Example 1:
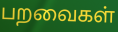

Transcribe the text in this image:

பறவைகள்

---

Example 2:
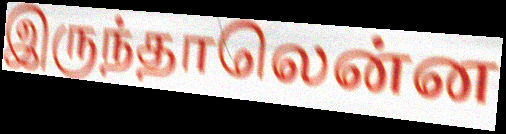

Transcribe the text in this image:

இருந்தாலென்ன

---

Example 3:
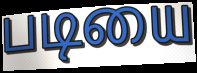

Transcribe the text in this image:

படியை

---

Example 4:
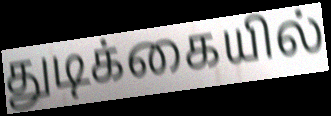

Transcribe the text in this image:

துடிக்கையில்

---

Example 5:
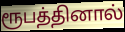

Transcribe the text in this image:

ரூபத்தினால்